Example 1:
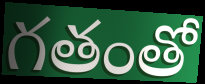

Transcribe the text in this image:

గతంతో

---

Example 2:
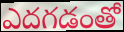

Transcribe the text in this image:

ఎదగడంతో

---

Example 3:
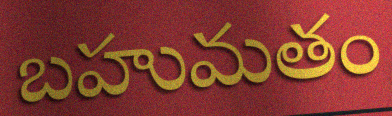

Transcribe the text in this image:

బహుమతం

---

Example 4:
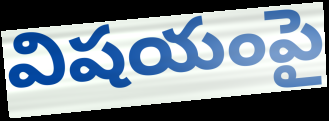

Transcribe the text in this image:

విషయంపై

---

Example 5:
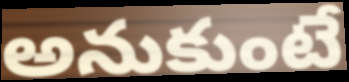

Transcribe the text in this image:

అనుకుంటే